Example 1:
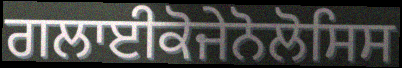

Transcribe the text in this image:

ਗਲਾਈਕੋਜੇਨੋਲੋਸਿਸ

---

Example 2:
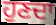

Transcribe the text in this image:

ਹੁਣਦਾ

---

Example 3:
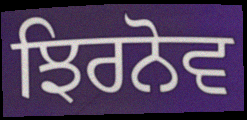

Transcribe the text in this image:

ਝਿਰਨੋਵ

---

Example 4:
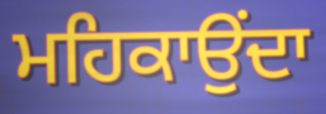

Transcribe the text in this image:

ਮਹਿਕਾਉਂਦਾ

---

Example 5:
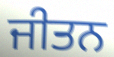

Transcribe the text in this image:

ਜੀਤਨ